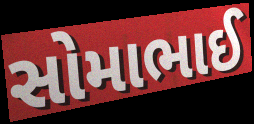
સોમાભાઈ